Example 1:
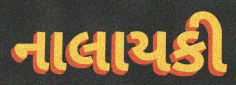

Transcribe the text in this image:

નાલાયકી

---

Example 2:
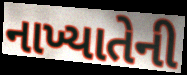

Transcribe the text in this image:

નાખ્યાતેની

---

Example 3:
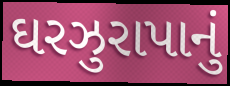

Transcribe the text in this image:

ઘરઝુરાપાનું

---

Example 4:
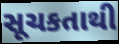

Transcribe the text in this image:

સૂચકતાથી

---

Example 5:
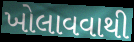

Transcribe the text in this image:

ખોલાવવાથી